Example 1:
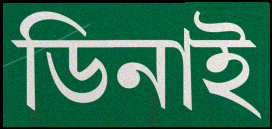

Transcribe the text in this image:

ডিনাই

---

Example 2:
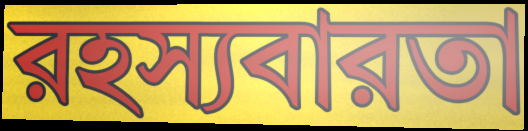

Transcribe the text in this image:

রহস্যবারতা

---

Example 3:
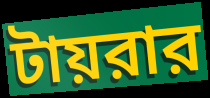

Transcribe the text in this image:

টায়রার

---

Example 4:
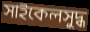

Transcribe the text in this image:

সাইকেলসুদ্ধ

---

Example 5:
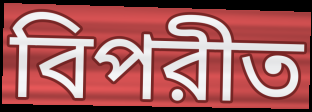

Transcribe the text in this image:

বিপরীত